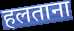
हलताना